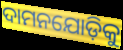
ଦାମନଯୋଡ଼ିକୁ